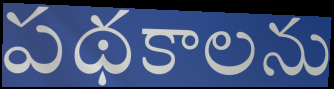
పథకాలను